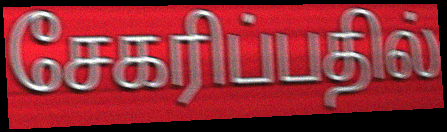
சேகரிப்பதில்